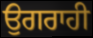
ਉਗਰਾਹੀ